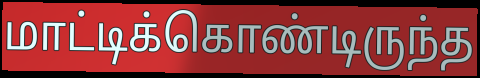
மாட்டிக்கொண்டிருந்த